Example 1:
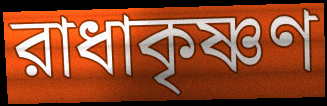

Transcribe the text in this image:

রাধাকৃষ্ণণ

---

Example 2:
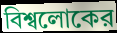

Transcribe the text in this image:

বিশ্বলোকের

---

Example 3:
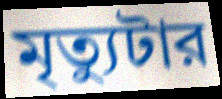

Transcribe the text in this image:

মৃত্যুটার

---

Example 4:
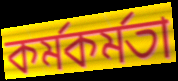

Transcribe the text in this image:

কর্মকর্মতা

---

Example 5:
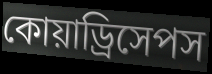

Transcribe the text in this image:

কোয়াড্রিসেপস